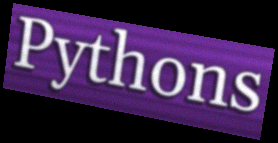
Pythons